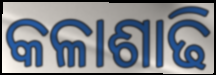
କଳାଶାଢି